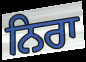
ਨਿਰਾ